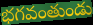
భగవంతుండు